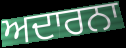
ਅਦਾਰਨਾ